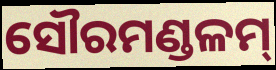
ସୌରମଣ୍ଡଳମ୍